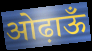
ओढ़ाऊँ